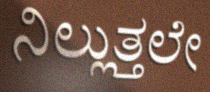
ನಿಲ್ಲುತ್ತಲೇ